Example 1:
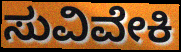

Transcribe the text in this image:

ಸುವಿವೇಕಿ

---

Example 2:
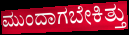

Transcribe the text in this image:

ಮುಂದಾಗಬೇಕಿತ್ತು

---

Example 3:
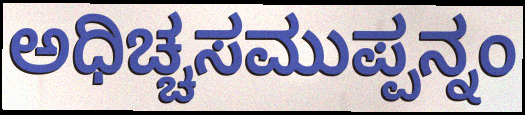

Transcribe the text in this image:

ಅಧಿಚ್ಚಸಮುಪ್ಪನ್ನಂ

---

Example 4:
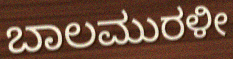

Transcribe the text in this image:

ಬಾಲಮುರಳೀ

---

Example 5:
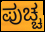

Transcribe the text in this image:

ಪುಚ್ಚ